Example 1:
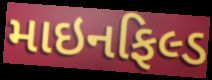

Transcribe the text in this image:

માઇનફિલ્ડ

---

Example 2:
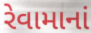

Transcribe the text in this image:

રેવામાનાં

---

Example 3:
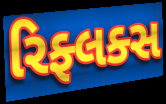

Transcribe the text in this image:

રિફ્લક્સ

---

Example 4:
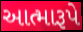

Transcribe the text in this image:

આત્મારૂપે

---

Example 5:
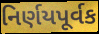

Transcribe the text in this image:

નિર્ણયપૂર્વક